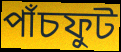
পাঁচফুট